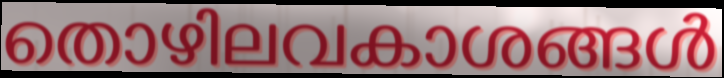
തൊഴിലവകാശങ്ങൾ